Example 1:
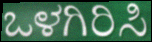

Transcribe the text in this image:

ಒಳಗಿರಿಸಿ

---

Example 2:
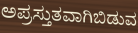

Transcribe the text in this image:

ಅಪ್ರಸ್ತುತವಾಗಿಬಿಡುವ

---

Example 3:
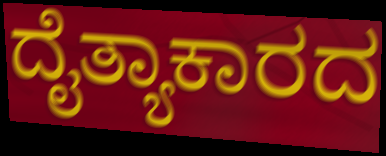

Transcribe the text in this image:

ದೈತ್ಯಾಕಾರದ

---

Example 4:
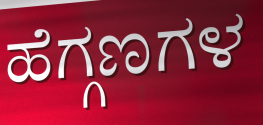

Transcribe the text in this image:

ಹೆಗ್ಗಣಗಳ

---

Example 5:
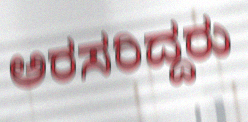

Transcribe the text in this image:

ಅರಸರಿದ್ದರು